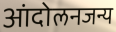
आंदोलनजन्य